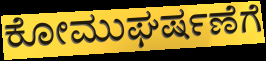
ಕೋಮುಘರ್ಷಣೆಗೆ